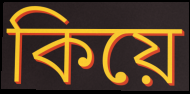
কিয়ে